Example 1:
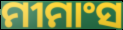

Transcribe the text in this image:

ମୀମାଂସ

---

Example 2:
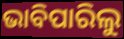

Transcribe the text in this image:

ଭାବିପାରିଲୁ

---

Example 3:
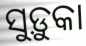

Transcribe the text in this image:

ସୁଡ଼ୁକା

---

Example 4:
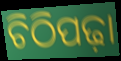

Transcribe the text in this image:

ଚିଠିପଢ଼ା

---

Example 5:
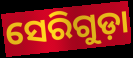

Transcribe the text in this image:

ସେରିଗୁଡ଼ା